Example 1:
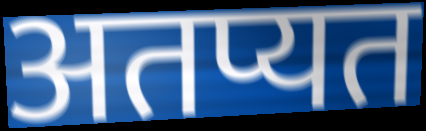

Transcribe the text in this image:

अतप्यत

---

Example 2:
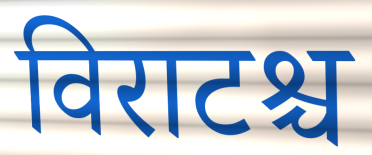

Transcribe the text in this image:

विराटश्च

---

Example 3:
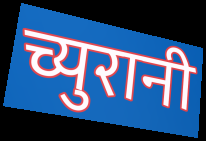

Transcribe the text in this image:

च्युरानी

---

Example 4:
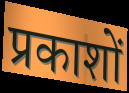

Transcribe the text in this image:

प्रकाशों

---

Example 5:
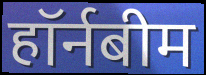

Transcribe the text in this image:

हॉर्नबीम